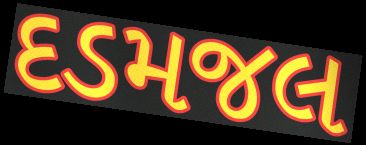
દડમજલ